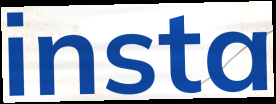
insta